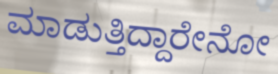
ಮಾಡುತ್ತಿದ್ದಾರೇನೋ